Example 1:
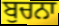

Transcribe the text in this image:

ਬੁਚਨਾ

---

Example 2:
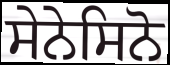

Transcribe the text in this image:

ਸੇਨੇਸਿਨੋ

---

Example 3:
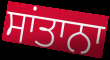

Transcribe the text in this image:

ਸਾਂਤਾਨਾ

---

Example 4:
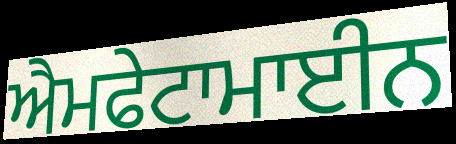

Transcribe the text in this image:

ਐਮਫੇਟਾਮਾਈਨ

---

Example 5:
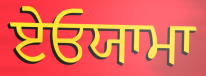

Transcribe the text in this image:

ਏਓਯਾਮਾ